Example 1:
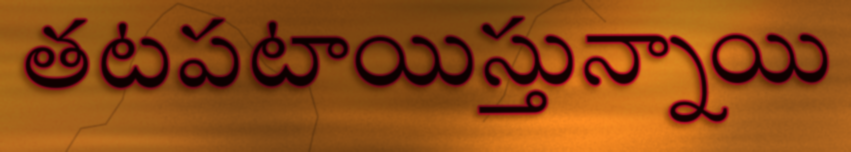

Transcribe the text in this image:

తటపటాయిస్తున్నాయి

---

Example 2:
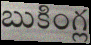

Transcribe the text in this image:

బుకింగ్ల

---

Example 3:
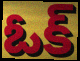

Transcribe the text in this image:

ఓక్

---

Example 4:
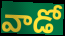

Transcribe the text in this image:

వాడో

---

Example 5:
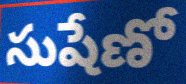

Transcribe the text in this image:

సుషేణో